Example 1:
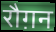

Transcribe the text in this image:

रौग़न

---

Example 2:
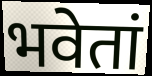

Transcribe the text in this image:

भवेतां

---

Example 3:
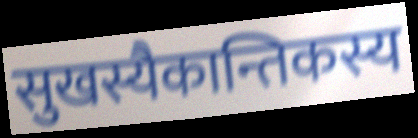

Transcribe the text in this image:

सुखस्यैकान्तिकस्य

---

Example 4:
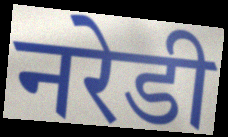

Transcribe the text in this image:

नरेडी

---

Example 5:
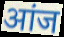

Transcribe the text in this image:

आंज